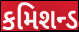
કમિશન્ડ